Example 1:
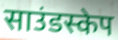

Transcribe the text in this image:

साउंडस्केप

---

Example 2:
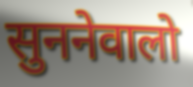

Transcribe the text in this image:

सुननेवालो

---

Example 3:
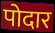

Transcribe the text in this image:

पोदार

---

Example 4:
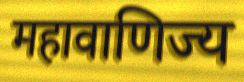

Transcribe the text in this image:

महावाणिज्य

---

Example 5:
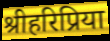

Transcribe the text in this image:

श्रीहरिप्रिया